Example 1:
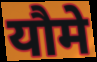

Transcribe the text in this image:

यौमे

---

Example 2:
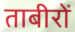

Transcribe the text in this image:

ताबीरों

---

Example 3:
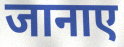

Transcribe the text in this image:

जानाए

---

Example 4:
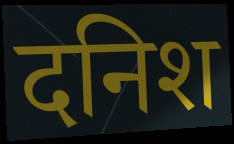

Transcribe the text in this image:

दनिश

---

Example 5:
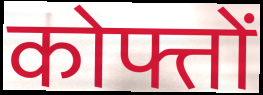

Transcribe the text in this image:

कोफ्तों